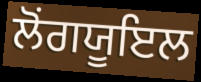
ਲੋਂਗਯੂਇਲ